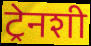
ट्रेनशी